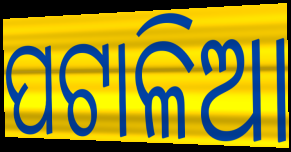
ପଟାଳିଆ